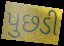
પુછડી